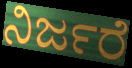
ನಿರ್ಜರೆ